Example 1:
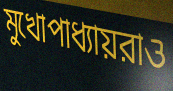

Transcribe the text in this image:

মুখোপাধ্যায়রাও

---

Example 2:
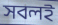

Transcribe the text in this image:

সবলই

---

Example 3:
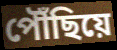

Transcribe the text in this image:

পৌঁছিয়ে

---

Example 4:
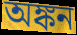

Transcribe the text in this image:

অঙ্কন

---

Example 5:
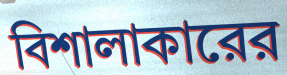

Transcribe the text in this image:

বিশালাকারের